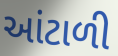
આંટાળી